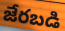
జేరబడి